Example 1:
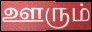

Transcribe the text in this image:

ஊரும்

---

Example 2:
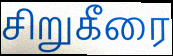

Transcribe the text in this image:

சிறுகீரை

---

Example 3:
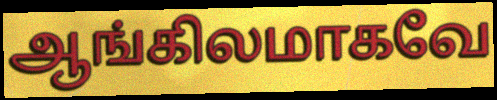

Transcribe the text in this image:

ஆங்கிலமாகவே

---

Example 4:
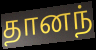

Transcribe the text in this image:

தானந்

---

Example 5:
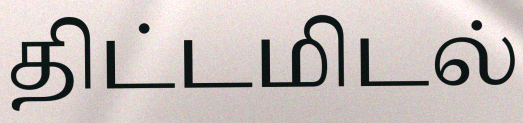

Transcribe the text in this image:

திட்டமிடல்